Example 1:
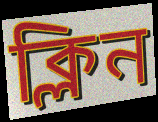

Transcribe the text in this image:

ক্লিন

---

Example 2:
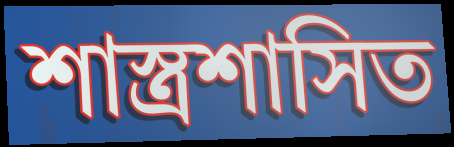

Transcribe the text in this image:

শাস্ত্রশাসিত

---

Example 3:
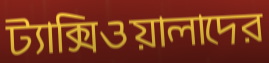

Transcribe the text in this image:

ট্যাক্সিওয়ালাদের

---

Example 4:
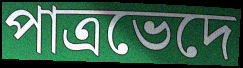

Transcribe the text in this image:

পাত্রভেদে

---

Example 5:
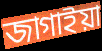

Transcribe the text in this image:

জাগাইয়া